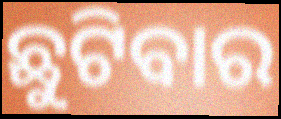
ଛୁଟିବାର